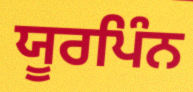
ਯੂਰਪਿੰਨ